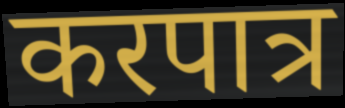
करपात्र